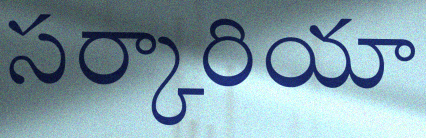
సర్కారియా